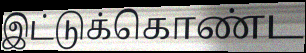
இட்டுக்கொண்ட